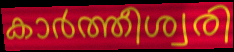
കാർത്തീശ്വരി